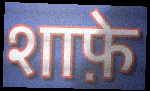
शाफ़े